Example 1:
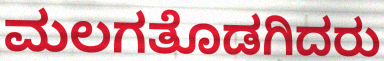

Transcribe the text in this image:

ಮಲಗತೊಡಗಿದರು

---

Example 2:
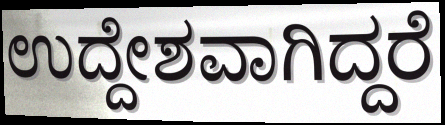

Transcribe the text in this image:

ಉದ್ದೇಶವಾಗಿದ್ದರೆ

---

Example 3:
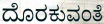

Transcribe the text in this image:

ದೊರಕುವಂತೆ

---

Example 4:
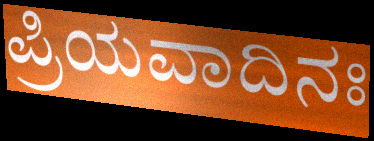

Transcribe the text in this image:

ಪ್ರಿಯವಾದಿನಃ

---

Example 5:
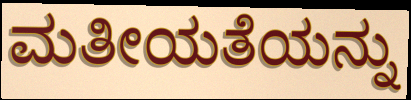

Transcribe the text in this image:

ಮತೀಯತೆಯನ್ನು